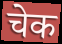
चेक